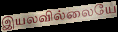
இயலவில்லையே